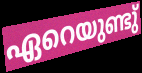
ഏറെയുണ്ടു്